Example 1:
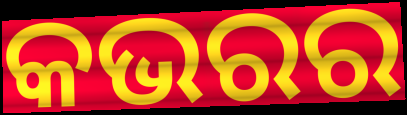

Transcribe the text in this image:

କଭରର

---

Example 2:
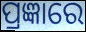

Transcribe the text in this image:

ପ୍ରଜ୍ଞାରେ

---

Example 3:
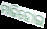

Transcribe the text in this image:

ମାଜିହୋଇ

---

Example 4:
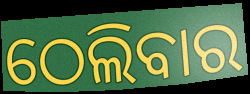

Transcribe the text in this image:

ଠେଲିବାର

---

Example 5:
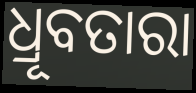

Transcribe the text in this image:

ଧ୍ରୂବତାରା